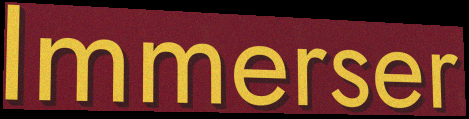
Immerser